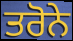
ਤਰੋਨੇ